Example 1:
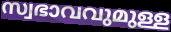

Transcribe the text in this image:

സ്വഭാവവുമുള്ള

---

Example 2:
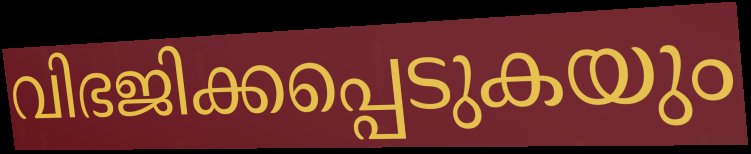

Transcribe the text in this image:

വിഭജിക്കപ്പെടുകയും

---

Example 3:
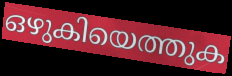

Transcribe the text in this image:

ഒഴുകിയെത്തുക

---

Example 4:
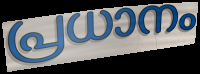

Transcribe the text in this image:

പ്രധാനം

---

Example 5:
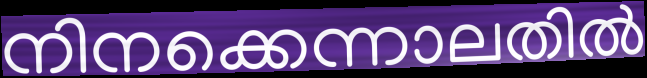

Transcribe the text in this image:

നിനക്കെന്നാലതിൽ